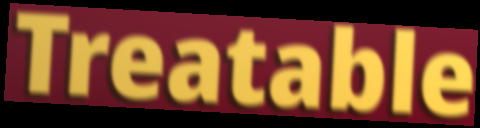
Treatable